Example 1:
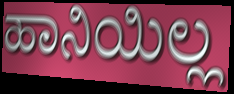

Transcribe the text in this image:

ಹಾನಿಯಿಲ್ಲ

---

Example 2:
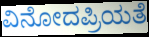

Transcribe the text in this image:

ವಿನೋದಪ್ರಿಯತೆ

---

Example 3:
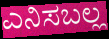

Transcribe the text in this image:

ಎನಿಸಬಲ್ಲ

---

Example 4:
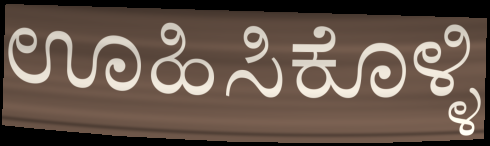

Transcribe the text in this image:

ಊಹಿಸಿಕೊಳ್ಳಿ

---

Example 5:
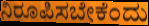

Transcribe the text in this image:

ನಿರೂಪಿಸಬೇಕೆಂದು